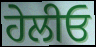
ਹੇਲੀਓ